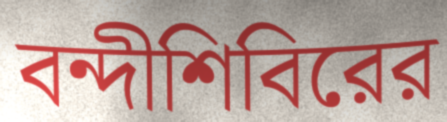
বন্দীশিবিরের